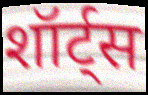
शॉर्ट्स